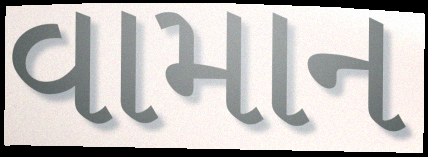
વામાન